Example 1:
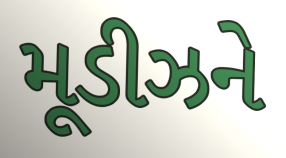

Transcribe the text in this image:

મૂડીઝને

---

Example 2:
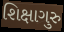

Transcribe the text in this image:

શિક્ષાગુરુ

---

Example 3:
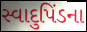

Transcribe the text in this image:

સ્વાદુપિંડના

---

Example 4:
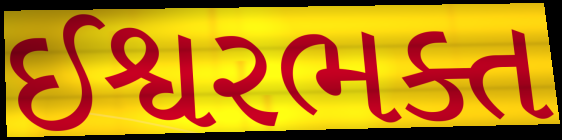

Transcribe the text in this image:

ઈશ્વરભક્ત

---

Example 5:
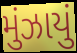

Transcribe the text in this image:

મુંઝાયું